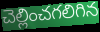
చెల్లించగలిగిన